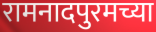
रामनादपुरमच्या